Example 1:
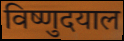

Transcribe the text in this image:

विष्णुदयाल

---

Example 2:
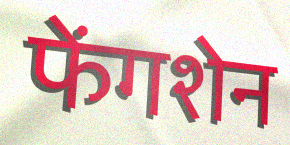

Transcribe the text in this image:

फेंगशेन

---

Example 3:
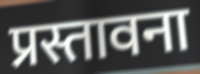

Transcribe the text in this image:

प्रस्तावना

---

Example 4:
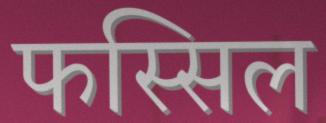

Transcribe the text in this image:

फस्सिल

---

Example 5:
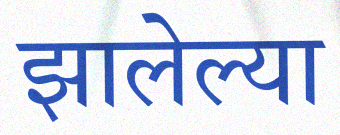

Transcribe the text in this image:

झालेल्या